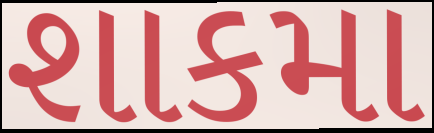
શાકમા